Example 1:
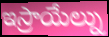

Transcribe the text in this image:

ఇస్రాయేల్ను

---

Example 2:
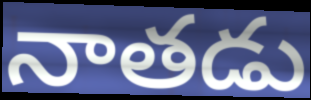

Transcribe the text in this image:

నాతడు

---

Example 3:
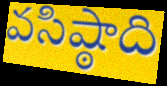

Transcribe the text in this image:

వసిష్ఠాది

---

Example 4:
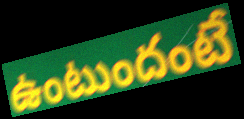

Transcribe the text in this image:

ఉంటుందంటే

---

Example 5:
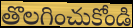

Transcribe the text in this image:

తొలగించుకోండి